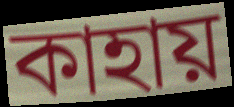
কাহায়